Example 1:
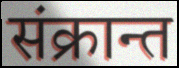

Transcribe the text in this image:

संक्रान्त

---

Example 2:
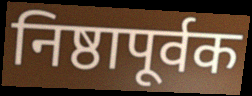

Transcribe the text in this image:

निष्ठापूर्वक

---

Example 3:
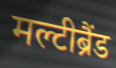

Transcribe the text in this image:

मल्टीब्रैंड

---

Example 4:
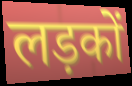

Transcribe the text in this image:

लड़कों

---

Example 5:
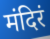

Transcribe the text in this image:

मंदिरं